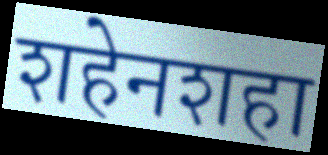
शहेनशहा